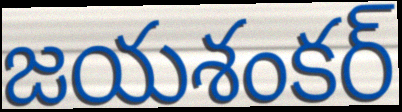
జయశంకర్